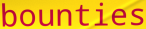
bounties